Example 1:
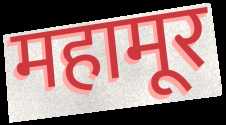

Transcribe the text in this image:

महामूर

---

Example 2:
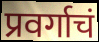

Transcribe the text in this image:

प्रवर्गाचं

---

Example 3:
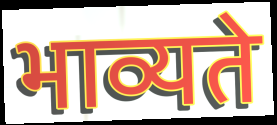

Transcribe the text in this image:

भाव्यते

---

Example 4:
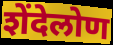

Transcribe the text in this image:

शेंदेलोण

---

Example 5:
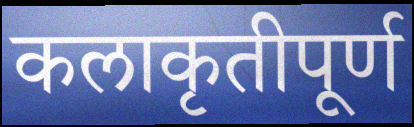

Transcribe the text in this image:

कलाकृतीपूर्ण